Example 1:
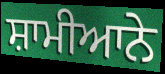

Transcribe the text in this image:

ਸ਼ਾਮੀਆਨੇ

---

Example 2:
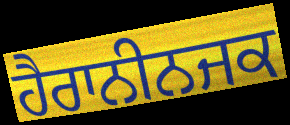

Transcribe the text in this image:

ਹੈਰਾਨੀਨਜਕ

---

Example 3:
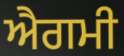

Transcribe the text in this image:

ਐਗਮੀ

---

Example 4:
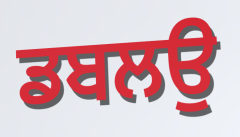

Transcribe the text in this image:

ਡਬਲਉ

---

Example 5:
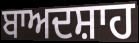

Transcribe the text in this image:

ਬਾਅਦਸ਼ਾਹ